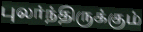
புலர்ந்திருக்கும்